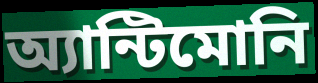
অ্যান্টিমোনি